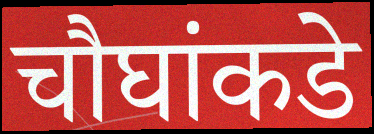
चौघांकडे